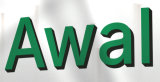
Awal